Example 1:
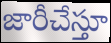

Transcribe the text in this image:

జారీచేస్తూ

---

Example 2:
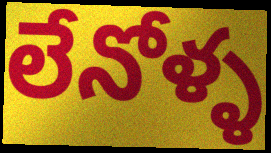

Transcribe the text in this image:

లేనోళ్ళ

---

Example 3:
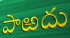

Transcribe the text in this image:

పాఱదు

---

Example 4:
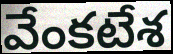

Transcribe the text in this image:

వేంకటేశ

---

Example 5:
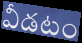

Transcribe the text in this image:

వీడటం